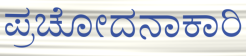
ಪ್ರಚೋದನಾಕಾರಿ